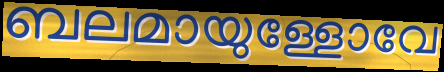
ബലമായുള്ളോവേ